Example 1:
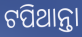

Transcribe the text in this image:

ଟପିଥାନ୍ତା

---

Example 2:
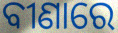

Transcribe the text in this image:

ବୀଣାରେ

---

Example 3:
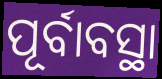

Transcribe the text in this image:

ପୂର୍ବାବସ୍ଥା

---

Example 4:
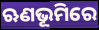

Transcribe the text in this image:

ଋଣଭୂମିରେ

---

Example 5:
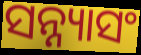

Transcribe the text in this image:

ସନ୍ନ୍ୟାସଂ